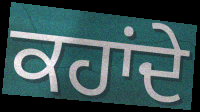
ਕਹਾਂਦੇ